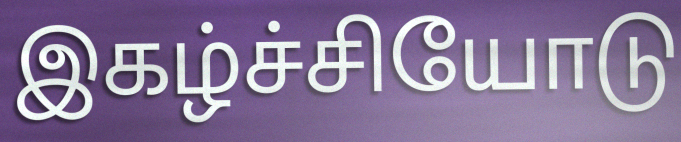
இகழ்ச்சியோடு